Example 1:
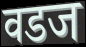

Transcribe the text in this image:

वडज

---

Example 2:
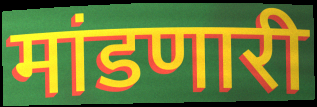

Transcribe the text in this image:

मांडणारी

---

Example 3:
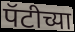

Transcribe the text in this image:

पॅटीच्या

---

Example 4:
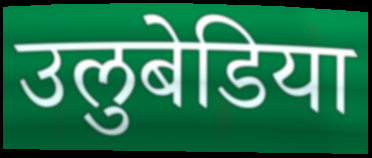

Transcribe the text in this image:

उलुबेडिया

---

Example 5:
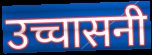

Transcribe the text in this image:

उच्चासनी